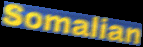
Somalian